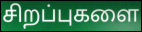
சிறப்புகளை